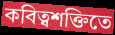
কবিত্বশক্তিতে